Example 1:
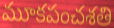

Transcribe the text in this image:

మూకపంచశతి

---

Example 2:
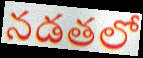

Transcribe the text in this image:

నడతలో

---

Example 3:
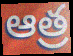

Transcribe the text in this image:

ఆత్ర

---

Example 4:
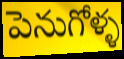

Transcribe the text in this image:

పెనుగోళ్ళ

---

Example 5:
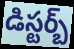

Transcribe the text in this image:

డిస్టర్బ్